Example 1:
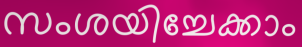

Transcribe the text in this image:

സംശയിച്ചേക്കാം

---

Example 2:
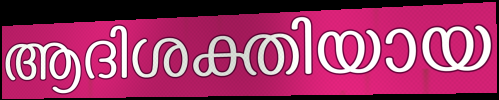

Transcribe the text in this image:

ആദിശക്തിയായ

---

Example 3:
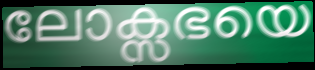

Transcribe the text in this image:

ലോക്സഭയെ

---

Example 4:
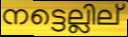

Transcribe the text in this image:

നട്ടെല്ലില്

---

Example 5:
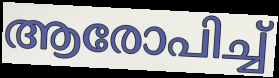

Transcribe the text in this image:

ആരോപിച്ച്